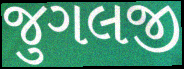
જુગલજી